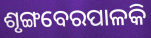
ଶୃଙ୍ଗବେରପାଳକି